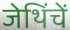
जेथिंचें